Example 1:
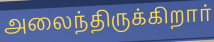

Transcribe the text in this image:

அலைந்திருக்கிறார்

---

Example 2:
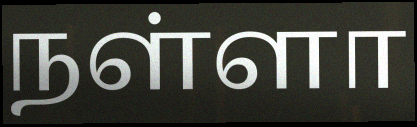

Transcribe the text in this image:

நள்ளா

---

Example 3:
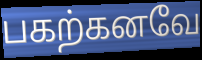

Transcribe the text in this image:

பகற்கனவே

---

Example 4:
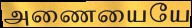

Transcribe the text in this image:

அணையையே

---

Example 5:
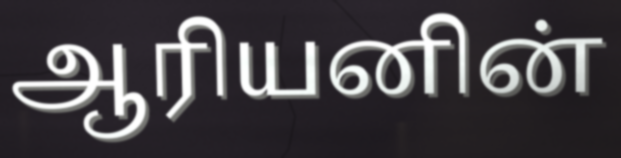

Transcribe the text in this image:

ஆரியனின்